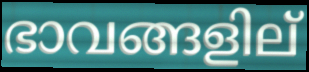
ഭാവങ്ങളില്